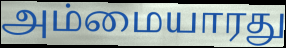
அம்மையாரது